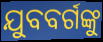
ଯୁବବର୍ଗଙ୍କୁ